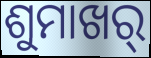
ଶୁମାଖର୍